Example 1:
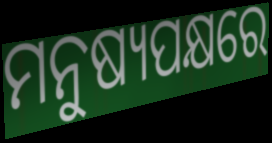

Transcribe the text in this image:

ମନୁଷ୍ୟପକ୍ଷରେ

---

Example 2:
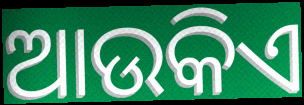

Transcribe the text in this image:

ଆଉକିଏ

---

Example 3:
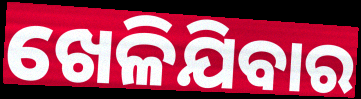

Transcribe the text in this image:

ଖେଳିଯିବାର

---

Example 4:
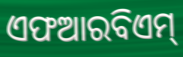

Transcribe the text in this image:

ଏଫଆରବିଏମ୍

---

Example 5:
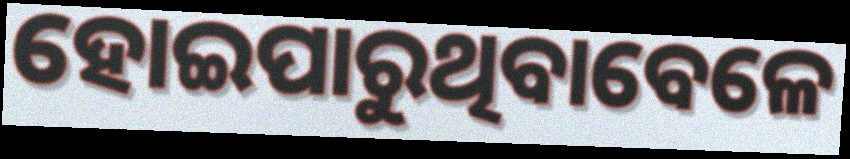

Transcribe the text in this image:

ହୋଇପାରୁଥିବାବେଳେ